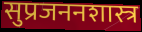
सुप्रजननशास्त्र